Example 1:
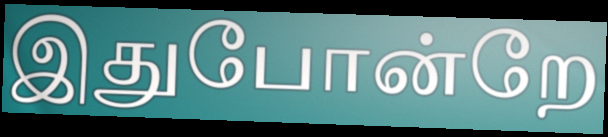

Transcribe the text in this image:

இதுபோன்றே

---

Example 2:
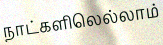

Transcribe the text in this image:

நாட்களிலெல்லாம்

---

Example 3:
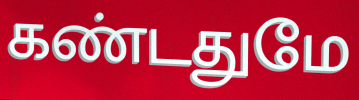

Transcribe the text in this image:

கண்டதுமே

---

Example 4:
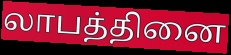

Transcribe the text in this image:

லாபத்தினை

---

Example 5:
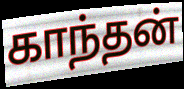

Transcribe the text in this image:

காந்தன்